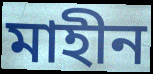
মাহীন